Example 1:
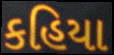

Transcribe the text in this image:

કહિયા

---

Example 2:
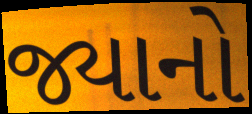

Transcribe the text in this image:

જ્યાનો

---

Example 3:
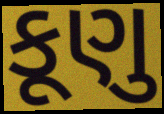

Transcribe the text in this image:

કૂણુ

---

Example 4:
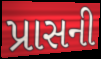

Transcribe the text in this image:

પ્રાસની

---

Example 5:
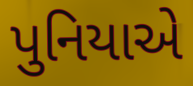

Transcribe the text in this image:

પુનિયાએ